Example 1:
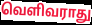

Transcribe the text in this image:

வெளிவராது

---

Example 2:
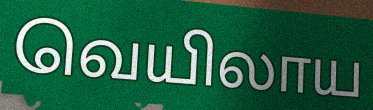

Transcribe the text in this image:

வெயிலாய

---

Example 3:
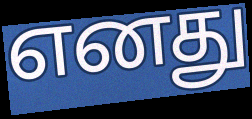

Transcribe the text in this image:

எனது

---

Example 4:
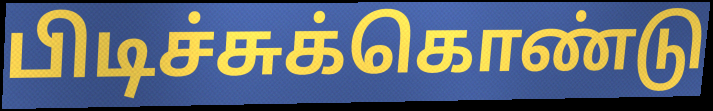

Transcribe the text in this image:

பிடிச்சுக்கொண்டு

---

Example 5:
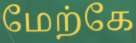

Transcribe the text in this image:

மேற்கே